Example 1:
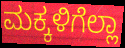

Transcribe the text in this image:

ಮಕ್ಕಳಿಗೆಲ್ಲಾ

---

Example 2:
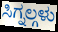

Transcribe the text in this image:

ಸಿಗ್ನಲ್ಗಳು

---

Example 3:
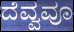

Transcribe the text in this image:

ದೆವ್ವವೂ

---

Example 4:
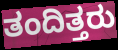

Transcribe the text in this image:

ತಂದಿತ್ತರು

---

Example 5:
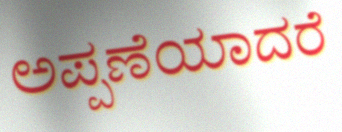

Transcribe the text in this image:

ಅಪ್ಪಣೆಯಾದರೆ